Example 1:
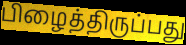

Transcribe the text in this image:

பிழைத்திருப்பது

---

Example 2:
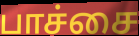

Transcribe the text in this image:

பாச்சை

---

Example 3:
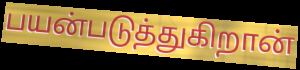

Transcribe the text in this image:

பயன்படுத்துகிறான்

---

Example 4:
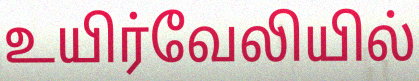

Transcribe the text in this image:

உயிர்வேலியில்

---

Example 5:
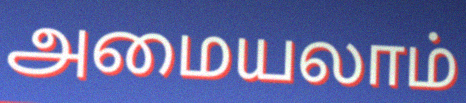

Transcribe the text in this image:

அமையலாம்